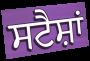
ਸਟੈਸ਼ਾਂ